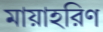
মায়াহরিণ